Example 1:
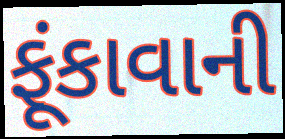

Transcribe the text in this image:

ફૂંકાવાની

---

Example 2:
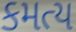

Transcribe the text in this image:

કમત્ય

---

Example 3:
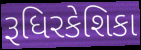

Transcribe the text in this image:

રૂધિરકેશિકા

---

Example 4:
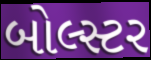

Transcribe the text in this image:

બોલ્સ્ટર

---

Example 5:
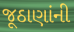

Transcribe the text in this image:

જૂઠાણાંની